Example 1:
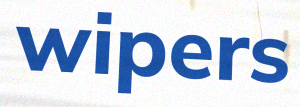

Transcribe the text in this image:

wipers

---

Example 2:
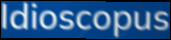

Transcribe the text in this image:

Idioscopus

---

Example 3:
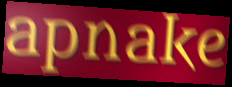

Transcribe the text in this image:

apnake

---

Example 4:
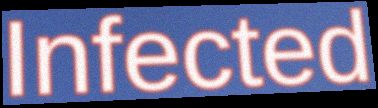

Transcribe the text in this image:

Infected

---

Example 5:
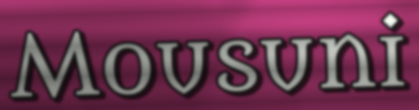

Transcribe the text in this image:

Mousuni